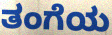
ತಂಗೆಯ